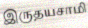
இருதயசாமி